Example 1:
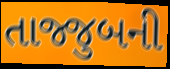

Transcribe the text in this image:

તાજ્જુબની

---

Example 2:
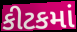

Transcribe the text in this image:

કીટકમાં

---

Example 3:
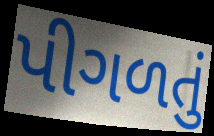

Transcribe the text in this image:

પીગળતું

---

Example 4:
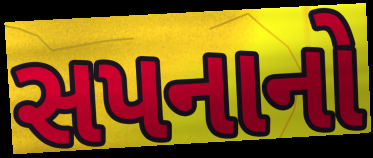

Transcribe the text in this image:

સપનાનો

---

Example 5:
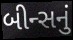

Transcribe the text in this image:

બીન્સનું